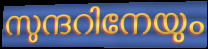
സുന്ദറിനേയും